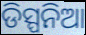
ଡିସ୍ପନିଆ